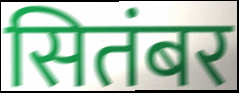
सितंबर